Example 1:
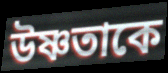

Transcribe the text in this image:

উষ্ণতাকে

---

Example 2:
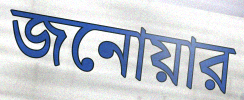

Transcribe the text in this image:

জনোয়ার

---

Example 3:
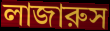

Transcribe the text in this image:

লাজারুস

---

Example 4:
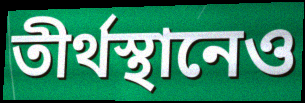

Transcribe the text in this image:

তীর্থস্থানেও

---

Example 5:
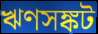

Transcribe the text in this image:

ঋণসঙ্কট